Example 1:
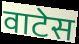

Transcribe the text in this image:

वाटेस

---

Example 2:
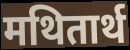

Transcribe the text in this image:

मथितार्थ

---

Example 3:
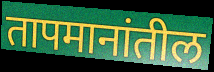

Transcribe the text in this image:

तापमानांतील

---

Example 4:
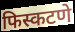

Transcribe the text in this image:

फिस्कटणे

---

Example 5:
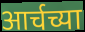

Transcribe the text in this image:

आर्चच्या